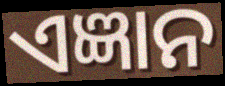
ଏଜ୍ଞାନ